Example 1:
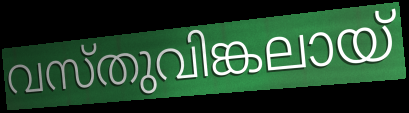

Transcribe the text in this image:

വസ്തുവിങ്കലായ്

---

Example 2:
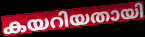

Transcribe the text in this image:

കയറിയതായി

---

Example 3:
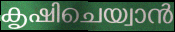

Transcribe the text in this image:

കൃഷിചെയ്വാൻ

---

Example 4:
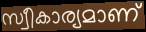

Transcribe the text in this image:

സ്വീകാര്യമാണ്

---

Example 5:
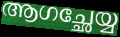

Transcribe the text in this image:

ആഗച്ഛേയ്യ